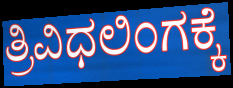
ತ್ರಿವಿಧಲಿಂಗಕ್ಕೆ